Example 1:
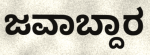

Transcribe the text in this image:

ಜವಾಬ್ದಾರ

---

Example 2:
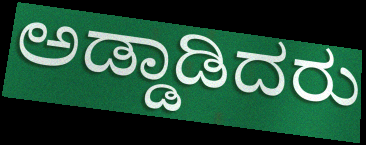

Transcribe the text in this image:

ಅಡ್ಡಾಡಿದರು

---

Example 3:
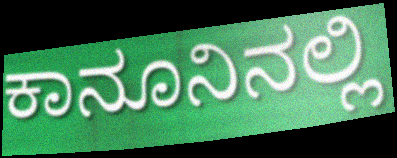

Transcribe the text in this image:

ಕಾನೂನಿನಲ್ಲಿ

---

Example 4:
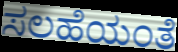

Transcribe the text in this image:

ಸಲಹೆಯಂತೆ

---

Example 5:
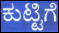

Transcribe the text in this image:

ಕುಟ್ಟಿಗೆ